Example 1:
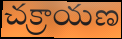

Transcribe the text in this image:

చక్రాయణ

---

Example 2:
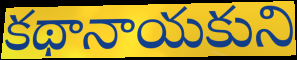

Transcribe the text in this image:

కథానాయకుని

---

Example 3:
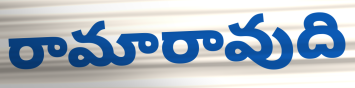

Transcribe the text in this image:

రామారావుది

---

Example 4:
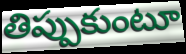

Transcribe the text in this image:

తిప్పుకుంటూ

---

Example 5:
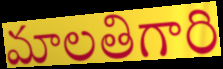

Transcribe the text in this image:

మాలతిగారి